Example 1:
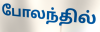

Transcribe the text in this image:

போலந்தில்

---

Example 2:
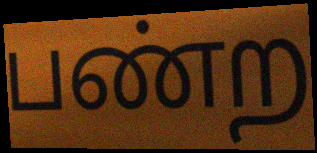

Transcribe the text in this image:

பண்ற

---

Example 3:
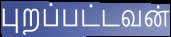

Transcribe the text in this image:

புறப்பட்டவன்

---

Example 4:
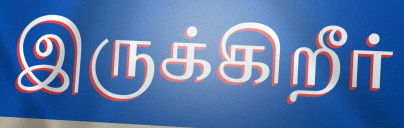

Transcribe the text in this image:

இருக்கிறீர்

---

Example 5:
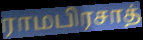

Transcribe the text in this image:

ராமபிரசாத்